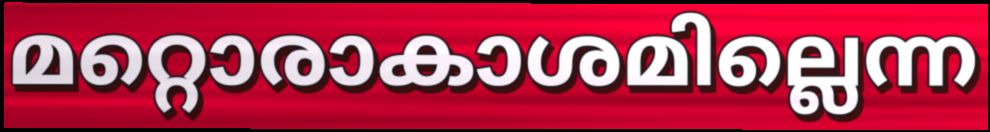
മറ്റൊരാകാശമില്ലെന്ന